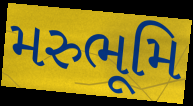
મરુભૂમિ